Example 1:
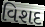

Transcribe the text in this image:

વિશદ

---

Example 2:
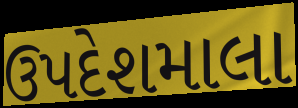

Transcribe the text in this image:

ઉપદેશમાલા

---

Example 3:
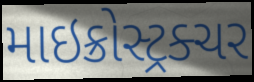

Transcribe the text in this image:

માઇક્રોસ્ટ્રક્ચર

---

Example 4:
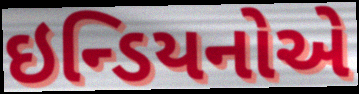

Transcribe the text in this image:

ઇન્ડિયનોએ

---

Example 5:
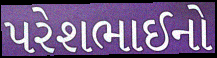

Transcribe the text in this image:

પરેશભાઈનો